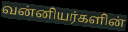
வன்னியர்களின்